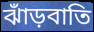
ঝাঁড়বাতি